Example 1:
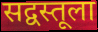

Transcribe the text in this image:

सद्वस्तूला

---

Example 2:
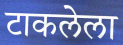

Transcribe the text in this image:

टाकलेला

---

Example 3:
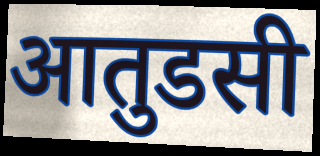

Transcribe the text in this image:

आतुडसी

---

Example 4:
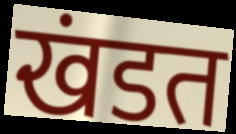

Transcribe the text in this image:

खंडत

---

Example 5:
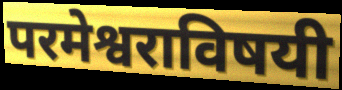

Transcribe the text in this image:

परमेश्वराविषयी